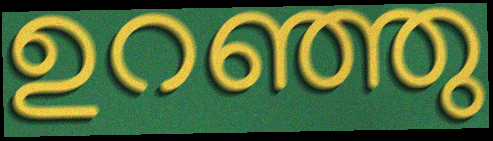
ഉറഞ്ഞു